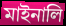
মাইনালি